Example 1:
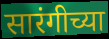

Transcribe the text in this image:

सारंगीच्या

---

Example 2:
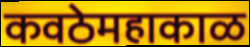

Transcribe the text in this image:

कवठेमहाकाळ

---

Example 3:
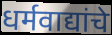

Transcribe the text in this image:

धर्मवाद्यांचे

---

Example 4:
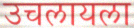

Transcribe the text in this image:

उचलायला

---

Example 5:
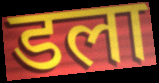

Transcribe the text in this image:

डला